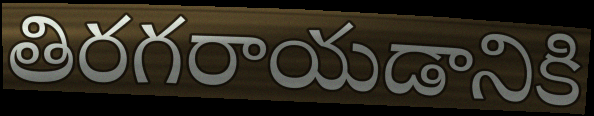
తిరగరాయడానికి